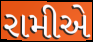
રામીએ